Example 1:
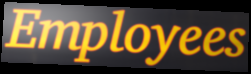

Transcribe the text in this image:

Employees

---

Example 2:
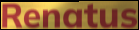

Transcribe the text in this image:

Renatus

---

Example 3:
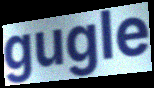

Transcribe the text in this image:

gugle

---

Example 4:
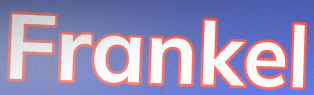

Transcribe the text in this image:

Frankel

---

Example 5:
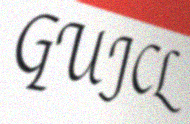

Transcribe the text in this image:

GUJCL